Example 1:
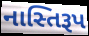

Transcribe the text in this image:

નાસ્તિરૂપ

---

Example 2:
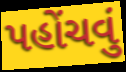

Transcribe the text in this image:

પહોંચવું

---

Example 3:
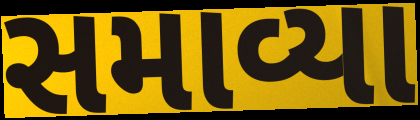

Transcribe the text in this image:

સમાવ્યા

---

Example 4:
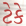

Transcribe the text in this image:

ટેકે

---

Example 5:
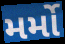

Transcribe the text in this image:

મર્મો